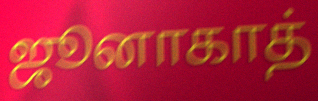
ஜூனாகாத்